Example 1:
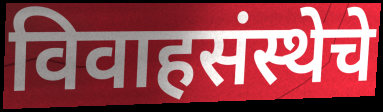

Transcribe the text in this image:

विवाहसंस्थेचे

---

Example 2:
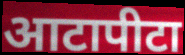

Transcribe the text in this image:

आटापीटा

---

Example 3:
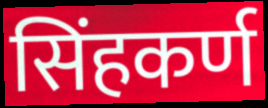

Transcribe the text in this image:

सिंहकर्ण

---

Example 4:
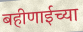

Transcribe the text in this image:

बहीणाईच्या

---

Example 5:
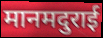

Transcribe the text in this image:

मानमदुराई